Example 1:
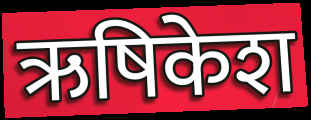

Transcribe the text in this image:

ऋषिकेश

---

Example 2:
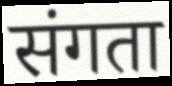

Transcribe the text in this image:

संगता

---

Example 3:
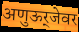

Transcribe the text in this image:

अणुऊर्जेवर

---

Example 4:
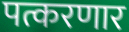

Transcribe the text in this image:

पत्करणार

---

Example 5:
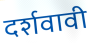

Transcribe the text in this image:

दर्शवावी